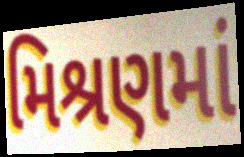
મિશ્રણમાં